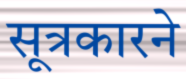
सूत्रकारने